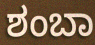
ಶಂಬಾ